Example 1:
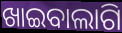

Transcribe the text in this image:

ଖାଇବାଲାଗି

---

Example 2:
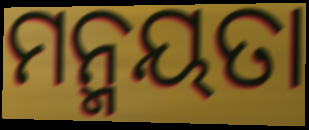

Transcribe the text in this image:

ମନ୍ମୟତା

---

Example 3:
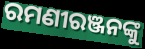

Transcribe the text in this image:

ରମଣୀରଞ୍ଜନଙ୍କୁ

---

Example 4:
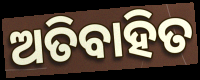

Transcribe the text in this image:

ଅତିବାହିତ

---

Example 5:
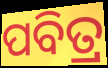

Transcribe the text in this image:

ପବିତ୍ର